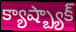
క్యాష్బ్యాక్